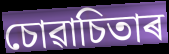
চোৱাচিতাৰ